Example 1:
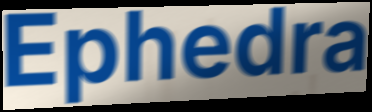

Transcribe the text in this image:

Ephedra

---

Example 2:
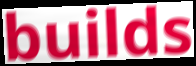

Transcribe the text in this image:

builds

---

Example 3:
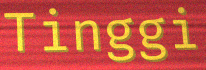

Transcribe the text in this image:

Tinggi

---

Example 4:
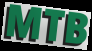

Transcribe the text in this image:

MTB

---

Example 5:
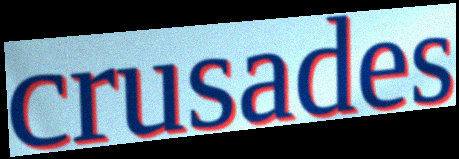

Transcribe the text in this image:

crusades